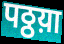
पठ्ठय़ा